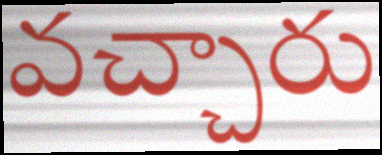
వచ్చారు